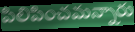
పిలిపించమన్నారు